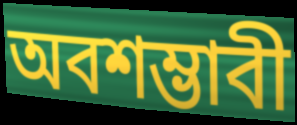
অবশম্ভাবী